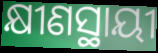
କ୍ଷୀଣସ୍ଥାୟୀ